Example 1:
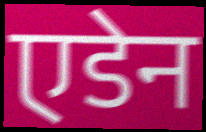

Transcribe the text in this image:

एडेन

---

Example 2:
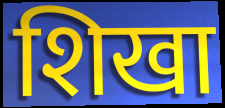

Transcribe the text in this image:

शिखा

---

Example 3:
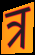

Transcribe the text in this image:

त्र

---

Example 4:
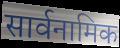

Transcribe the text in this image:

सार्वनामिक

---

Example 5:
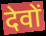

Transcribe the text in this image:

देवों